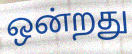
ஒன்றது